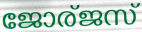
ജോര്ജസ്